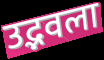
उद्भवला